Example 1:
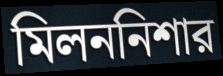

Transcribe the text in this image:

মিলননিশার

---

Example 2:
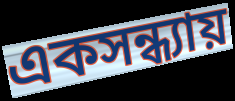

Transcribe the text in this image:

একসন্ধ্যায়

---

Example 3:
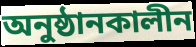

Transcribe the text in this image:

অনুষ্ঠানকালীন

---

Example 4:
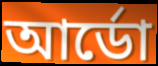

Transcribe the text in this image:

আর্ডো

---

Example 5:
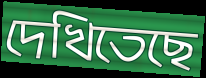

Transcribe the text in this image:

দেখিতেছে